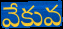
వేకువ